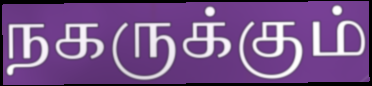
நகருக்கும்